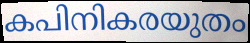
കപിനികരയുതം